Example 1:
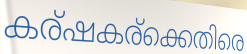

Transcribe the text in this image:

കര്ഷകര്ക്കെതിരെ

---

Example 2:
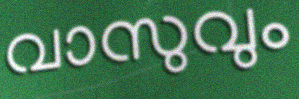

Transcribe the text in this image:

വാസുവും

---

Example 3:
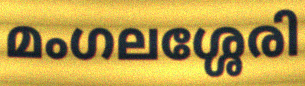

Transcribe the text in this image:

മംഗലശ്ശേരി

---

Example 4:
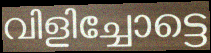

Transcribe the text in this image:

വിളിച്ചോട്ടെ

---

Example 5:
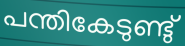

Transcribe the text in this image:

പന്തികേടുണ്ടു്